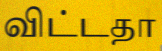
விட்டதா